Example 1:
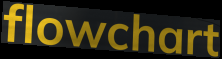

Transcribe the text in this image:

flowchart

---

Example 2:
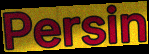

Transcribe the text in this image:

Persin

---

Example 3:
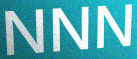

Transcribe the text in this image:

NNN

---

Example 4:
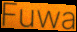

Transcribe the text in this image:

Fuwa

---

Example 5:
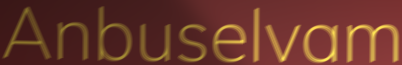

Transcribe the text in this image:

Anbuselvam